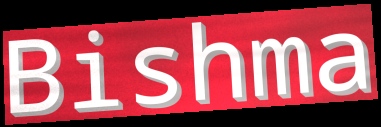
Bishma